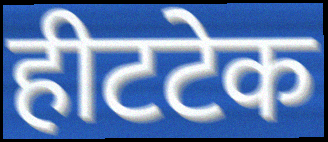
हीटटेक